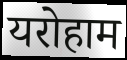
यरोहाम